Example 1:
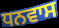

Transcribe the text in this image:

ਧਨਵਾਸ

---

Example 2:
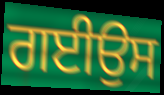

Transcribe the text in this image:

ਗਈਉਸ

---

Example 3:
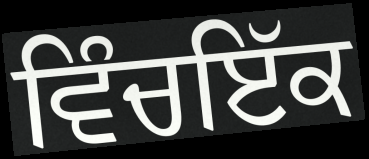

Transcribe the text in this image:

ਵਿੰਚਇੱਕ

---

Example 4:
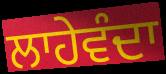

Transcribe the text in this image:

ਲਾਹੇਵੰਦਾ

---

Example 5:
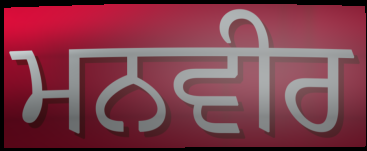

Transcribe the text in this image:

ਮਨਵੀਰ